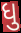
ધુ